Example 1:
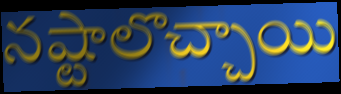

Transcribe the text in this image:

నష్టాలొచ్చాయి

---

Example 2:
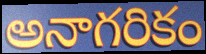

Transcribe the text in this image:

అనాగరికం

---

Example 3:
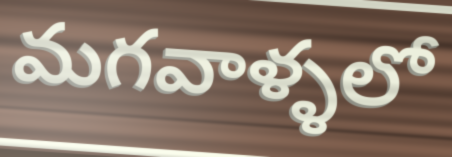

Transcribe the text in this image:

మగవాళ్ళలో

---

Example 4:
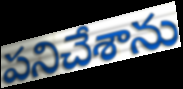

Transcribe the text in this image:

పనిచేశాను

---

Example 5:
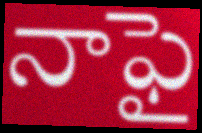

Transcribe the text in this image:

నాఫై